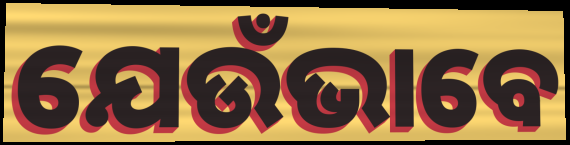
ଯେଉଁଭାବେ